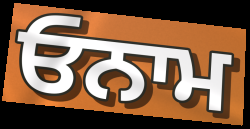
ਓਨਾਮ